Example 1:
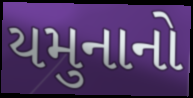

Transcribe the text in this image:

યમુનાનો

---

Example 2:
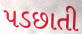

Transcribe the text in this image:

પડછાતી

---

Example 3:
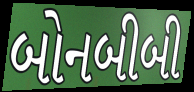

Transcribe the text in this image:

બોનબીબી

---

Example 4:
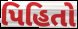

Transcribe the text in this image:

પિહિતો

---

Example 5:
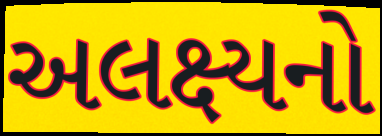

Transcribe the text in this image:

અલક્ષ્યનો